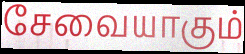
சேவையாகும்